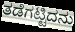
ತಡೆಗಟ್ಟಿದನು